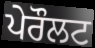
ਪੇਰੌਲਟ